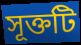
সূক্তটি